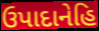
ઉપાદાનેહિ